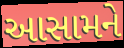
આસામને